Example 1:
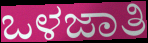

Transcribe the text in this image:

ಒಳಜಾತಿ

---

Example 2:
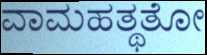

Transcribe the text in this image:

ವಾಮಹತ್ಥತೋ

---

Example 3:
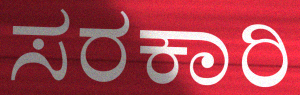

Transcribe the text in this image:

ಸರಕಾರಿ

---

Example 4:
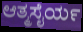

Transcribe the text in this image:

ಆತ್ಮಸೈರ್ಯ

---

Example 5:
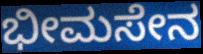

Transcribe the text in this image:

ಭೀಮಸೇನ